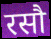
रसौ